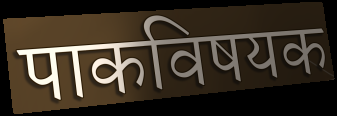
पाकविषयक